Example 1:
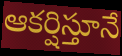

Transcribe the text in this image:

ఆకర్షిస్తూనే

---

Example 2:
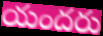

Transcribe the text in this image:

యందరు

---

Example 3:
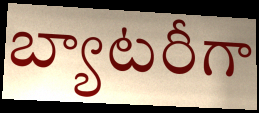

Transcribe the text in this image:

బ్యాటరీగా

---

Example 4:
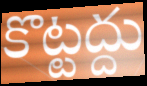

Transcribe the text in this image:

కొట్టద్దు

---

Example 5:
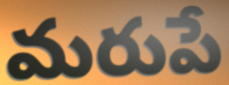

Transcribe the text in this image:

మరుపే